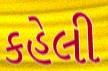
કહેલી